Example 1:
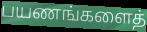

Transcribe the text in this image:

பயணங்களைத்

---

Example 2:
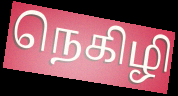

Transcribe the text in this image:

நெகிழி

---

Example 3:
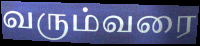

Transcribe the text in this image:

வரும்வரை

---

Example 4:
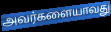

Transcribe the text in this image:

அவர்களையாவது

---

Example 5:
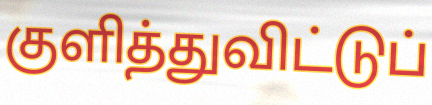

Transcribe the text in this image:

குளித்துவிட்டுப்